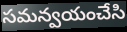
సమన్వయంచేసి